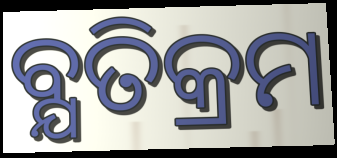
ବ୍ଯତିକ୍ରମ